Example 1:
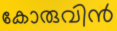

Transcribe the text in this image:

കോരുവിൻ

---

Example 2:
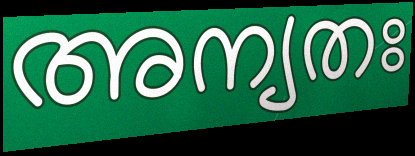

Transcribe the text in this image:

അന്യതഃ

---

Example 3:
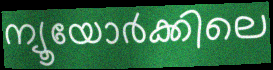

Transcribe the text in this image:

ന്യൂയോർക്കിലെ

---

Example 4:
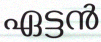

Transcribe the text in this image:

ഏട്ടൻ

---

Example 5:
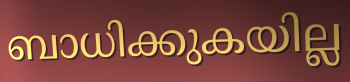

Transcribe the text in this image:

ബാധിക്കുകയില്ല